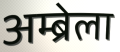
अम्‍ब्रेला